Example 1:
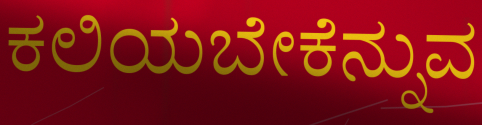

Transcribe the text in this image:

ಕಲಿಯಬೇಕೆನ್ನುವ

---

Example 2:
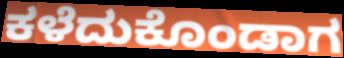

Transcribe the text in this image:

ಕಳೆದುಕೊಂಡಾಗ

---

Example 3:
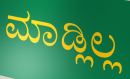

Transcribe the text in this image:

ಮಾಡ್ಲಿಲ್ಲ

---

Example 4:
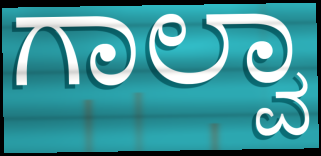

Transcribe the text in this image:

ಗಾಲ್ವಾ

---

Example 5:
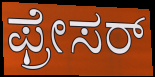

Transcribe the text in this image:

ಫ್ರೇಸರ್